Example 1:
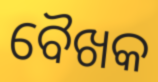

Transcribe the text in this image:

ବୈଖକ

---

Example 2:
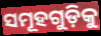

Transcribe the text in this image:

ସମୂହଗୁଡ଼ିକୁ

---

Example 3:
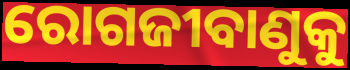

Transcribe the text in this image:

ରୋଗଜୀବାଣୁକୁ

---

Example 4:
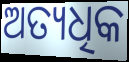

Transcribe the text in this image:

ଅତ୍ୟଧିକ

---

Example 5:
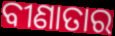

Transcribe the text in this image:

ବୀଣାତାର